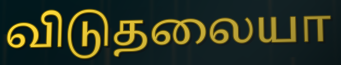
விடுதலையா